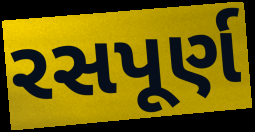
રસપૂર્ણ